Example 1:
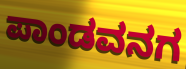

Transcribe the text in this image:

ಪಾಂಡವನಗ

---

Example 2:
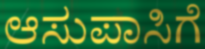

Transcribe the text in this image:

ಆಸುಪಾಸಿಗೆ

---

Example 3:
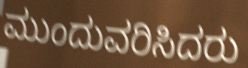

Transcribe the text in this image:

ಮುಂದುವರಿಸಿದರು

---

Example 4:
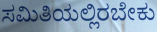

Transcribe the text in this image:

ಸಮಿತಿಯಲ್ಲಿರಬೇಕು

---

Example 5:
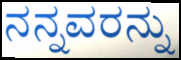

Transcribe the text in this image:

ನನ್ನವರನ್ನು